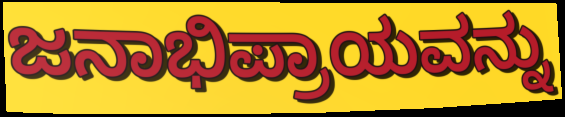
ಜನಾಭಿಪ್ರಾಯವನ್ನು